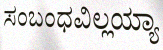
ಸಂಬಂಧವಿಲ್ಲಯ್ಯಾ